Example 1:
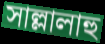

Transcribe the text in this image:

সাল্লালাহু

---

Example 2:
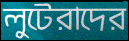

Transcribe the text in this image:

লুটেরাদের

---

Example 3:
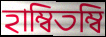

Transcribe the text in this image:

হাম্বিতম্বি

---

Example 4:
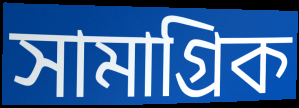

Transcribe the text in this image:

সামাগ্রিক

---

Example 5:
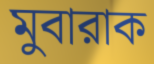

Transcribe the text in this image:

মুবারাক